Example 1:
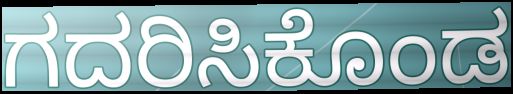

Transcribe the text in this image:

ಗದರಿಸಿಕೊಂಡ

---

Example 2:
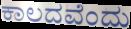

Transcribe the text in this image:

ಕಾಲದವೆಂದು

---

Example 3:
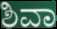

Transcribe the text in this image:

ಶಿವಾ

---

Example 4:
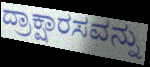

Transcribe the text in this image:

ದ್ರಾಕ್ಷಾರಸವನ್ನು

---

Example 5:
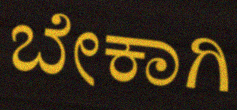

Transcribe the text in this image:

ಬೇಕಾಗಿ